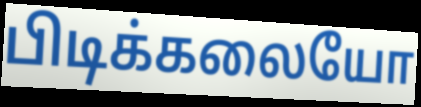
பிடிக்கலையோ